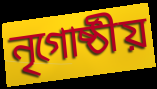
নৃগোষ্ঠীয়